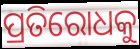
ପ୍ରତିରୋଧକୁ